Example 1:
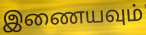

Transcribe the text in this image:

இணையவும்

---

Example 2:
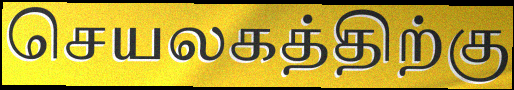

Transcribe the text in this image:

செயலகத்திற்கு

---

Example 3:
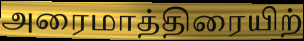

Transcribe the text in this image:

அரைமாத்திரையிற்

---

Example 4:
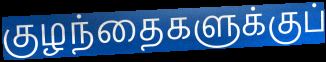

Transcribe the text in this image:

குழந்தைகளுக்குப்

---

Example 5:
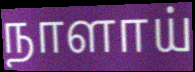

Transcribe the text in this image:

நாளாய்